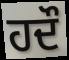
ਹਦੌ